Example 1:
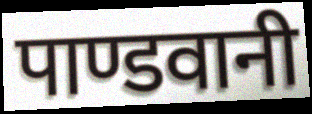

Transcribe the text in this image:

पाण्डवानी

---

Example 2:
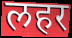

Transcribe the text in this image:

लहर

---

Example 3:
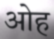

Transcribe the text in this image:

ओह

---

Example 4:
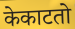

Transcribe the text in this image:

केकाटतो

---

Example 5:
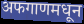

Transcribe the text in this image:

अफगाणमधून